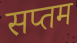
सप्तम